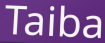
Taiba